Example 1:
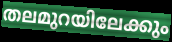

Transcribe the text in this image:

തലമുറയിലേക്കും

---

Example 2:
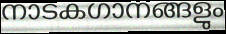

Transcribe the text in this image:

നാടകഗാനങ്ങളും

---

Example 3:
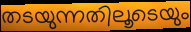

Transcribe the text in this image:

തടയുന്നതിലൂടെയും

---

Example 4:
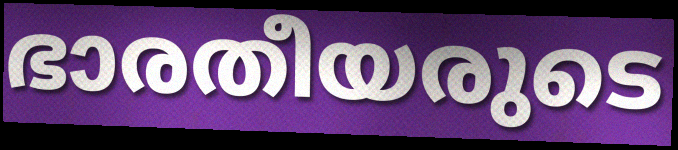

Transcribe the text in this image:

ഭാരതീയരുടെ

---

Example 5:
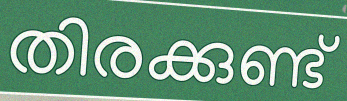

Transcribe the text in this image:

തിരക്കുണ്ട്